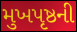
મુખપૃષ્ઠની